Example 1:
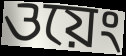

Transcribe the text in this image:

ওয়েং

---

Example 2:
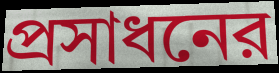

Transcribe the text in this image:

প্রসাধনের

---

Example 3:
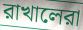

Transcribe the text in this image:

রাখালেরা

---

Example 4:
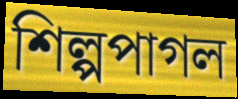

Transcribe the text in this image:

শিল্পপাগল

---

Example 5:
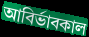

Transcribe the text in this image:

আবির্ভাবকাল